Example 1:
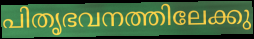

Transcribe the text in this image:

പിതൃഭവനത്തിലേക്കു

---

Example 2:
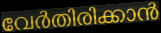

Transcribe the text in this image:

വേർതിരിക്കാൻ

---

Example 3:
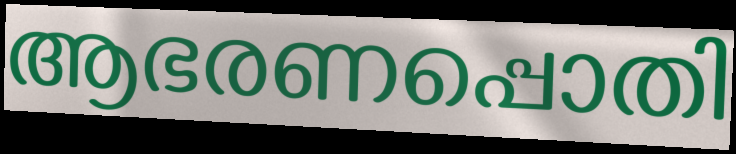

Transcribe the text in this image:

ആഭരണപ്പൊതി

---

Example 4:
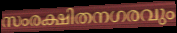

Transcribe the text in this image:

സംരക്ഷിതനഗരവും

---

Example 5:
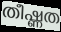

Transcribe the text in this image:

തീഷ്ണത